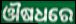
ଔଷଧରେ